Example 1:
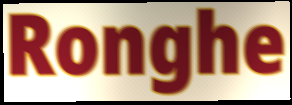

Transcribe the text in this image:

Ronghe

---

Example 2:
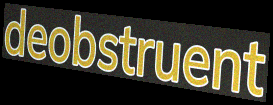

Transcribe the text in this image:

deobstruent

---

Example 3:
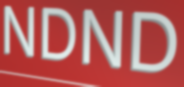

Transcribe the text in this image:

NDND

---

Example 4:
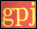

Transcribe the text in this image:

gpj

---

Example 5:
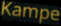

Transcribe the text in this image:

Kampe